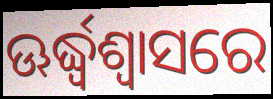
ଊର୍ଦ୍ଧ୍ୱଶ୍ୱାସରେ